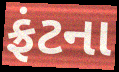
ફ્રંટના